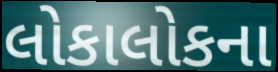
લોકાલોકના